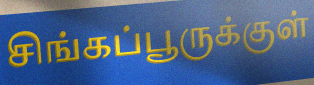
சிங்கப்பூருக்குள்